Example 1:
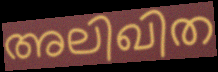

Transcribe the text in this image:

അലിഖിത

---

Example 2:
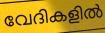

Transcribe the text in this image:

വേദികളിൽ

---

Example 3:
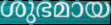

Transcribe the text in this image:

ശുഭമായ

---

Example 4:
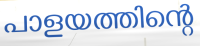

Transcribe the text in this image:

പാളയത്തിന്റെ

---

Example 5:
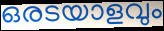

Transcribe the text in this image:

ഒരടയാളവും